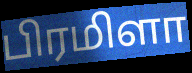
பிரமிளா